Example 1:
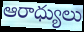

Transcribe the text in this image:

ఆరాధ్యులు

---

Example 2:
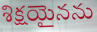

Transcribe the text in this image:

శిక్షయైనను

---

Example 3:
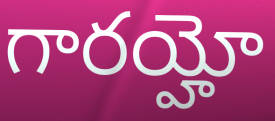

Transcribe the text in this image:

గారయ్హో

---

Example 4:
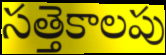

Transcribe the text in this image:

సత్తెకాలపు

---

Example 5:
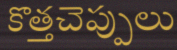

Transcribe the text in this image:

కొత్తచెప్పులు